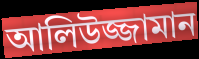
আলিউজ্জামান